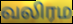
வலிரம